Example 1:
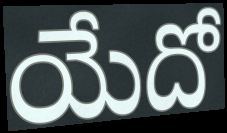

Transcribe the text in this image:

యేదో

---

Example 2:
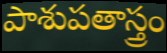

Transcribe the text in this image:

పాశుపతాస్త్రం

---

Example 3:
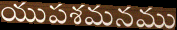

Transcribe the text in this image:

యుపశమనము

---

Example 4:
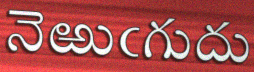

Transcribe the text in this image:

నెఱుఁగుదు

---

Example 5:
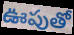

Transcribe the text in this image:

ఊపుతో